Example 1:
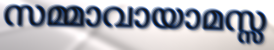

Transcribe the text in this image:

സമ്മാവായാമസ്സ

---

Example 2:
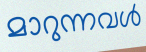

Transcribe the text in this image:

മാറുന്നവൾ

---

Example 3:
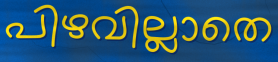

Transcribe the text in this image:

പിഴവില്ലാതെ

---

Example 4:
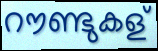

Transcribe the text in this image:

റൗണ്ടുകള്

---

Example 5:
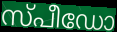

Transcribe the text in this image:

സ്പീഡോ